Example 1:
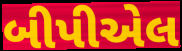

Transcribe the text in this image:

બીપીએલ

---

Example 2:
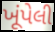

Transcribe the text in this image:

ખૂંપેલી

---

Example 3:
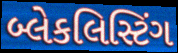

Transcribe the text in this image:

બ્લેકલિસ્ટિંગ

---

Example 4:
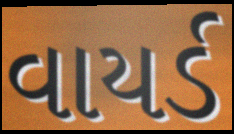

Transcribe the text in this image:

વાયર્ડ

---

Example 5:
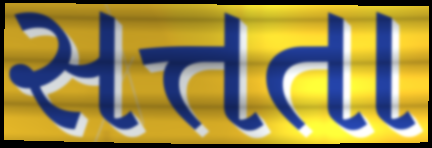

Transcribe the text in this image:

સત્તતા